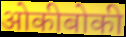
ओकीबोकी